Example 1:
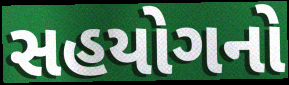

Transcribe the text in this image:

સહયોગનો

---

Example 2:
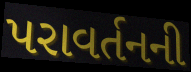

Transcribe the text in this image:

પરાવર્તનની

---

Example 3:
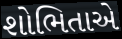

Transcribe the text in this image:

શોભિતાએ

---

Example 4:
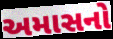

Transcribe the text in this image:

અમાસનો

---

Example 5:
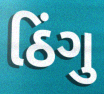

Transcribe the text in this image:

ઠિંગુ